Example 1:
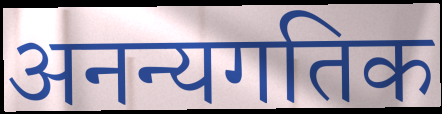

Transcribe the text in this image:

अनन्यगतिक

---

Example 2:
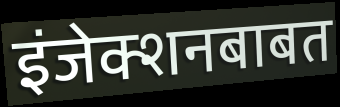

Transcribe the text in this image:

इंजेक्शनबाबत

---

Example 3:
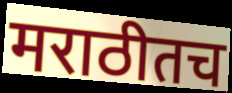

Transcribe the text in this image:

मराठीतच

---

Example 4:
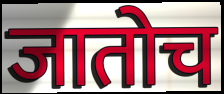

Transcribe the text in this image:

जातोच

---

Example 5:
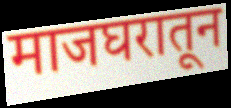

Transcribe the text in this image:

माजघरातून